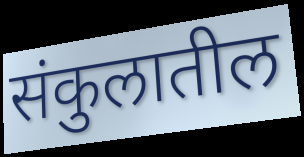
संकुलातील